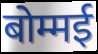
बोम्मई